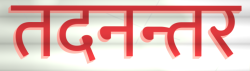
तदनन्तर